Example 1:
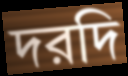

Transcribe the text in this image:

দরদি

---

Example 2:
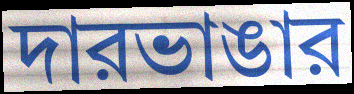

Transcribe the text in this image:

দারভাঙার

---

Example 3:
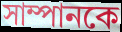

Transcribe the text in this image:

সাম্পানকে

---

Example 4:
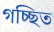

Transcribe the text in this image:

গচ্ছিত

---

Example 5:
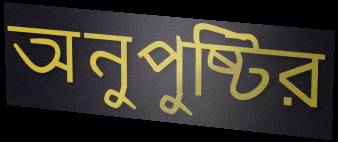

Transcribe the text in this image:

অনুপুষ্টির